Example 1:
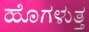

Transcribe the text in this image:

ಹೊಗಳುತ್ತ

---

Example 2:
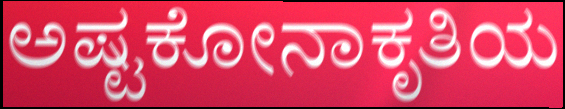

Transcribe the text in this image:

ಅಷ್ಟಕೋನಾಕೃತಿಯ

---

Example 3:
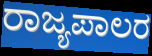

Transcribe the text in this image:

ರಾಜ್ಯಪಾಲರ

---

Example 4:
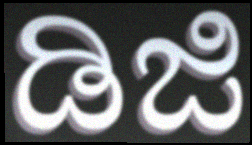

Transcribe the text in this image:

ಡಿಜಿ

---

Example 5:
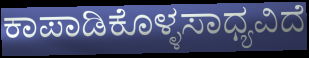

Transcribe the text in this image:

ಕಾಪಾಡಿಕೊಳ್ಳಸಾಧ್ಯವಿದೆ